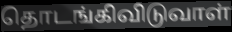
தொடங்கிவிடுவாள்